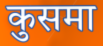
कुसमा